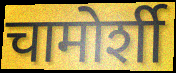
चामोर्शी